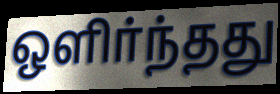
ஒளிர்ந்தது